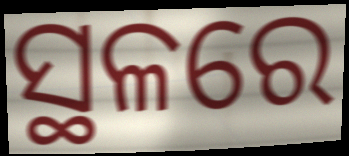
ସ୍ଥଳରେ